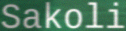
Sakoli